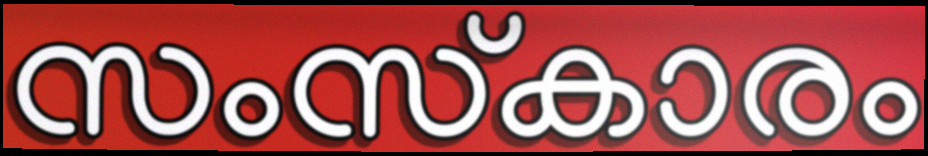
സംസ്‌കാരം